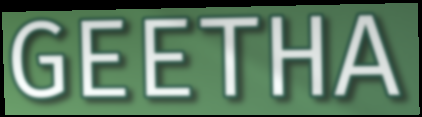
GEETHA